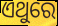
ଏଥୁରେ